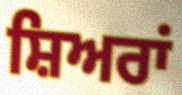
ਸ਼ਿਅਰਾਂ